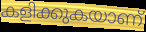
കളിക്കുകയാണ്